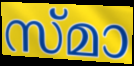
സ്മാ